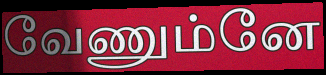
வேணும்னே